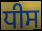
ਧੀਸ